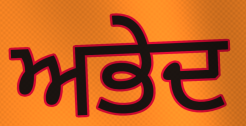
ਅਭੇਦ